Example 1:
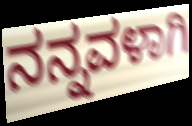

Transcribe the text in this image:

ನನ್ನವಳಾಗಿ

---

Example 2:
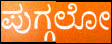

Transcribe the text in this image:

ಪುಗ್ಗಲೋ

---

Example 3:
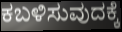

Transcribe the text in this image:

ಕಬಳಿಸುವುದಕ್ಕೆ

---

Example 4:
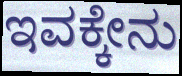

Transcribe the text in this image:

ಇವಕ್ಕೇನು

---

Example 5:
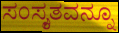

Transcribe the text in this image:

ಸಂಸ್ಕೃತವನ್ನೂ